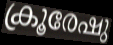
ക്രൂരേഷു